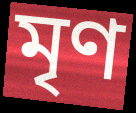
মৃণ